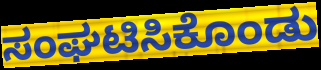
ಸಂಘಟಿಸಿಕೊಂಡು